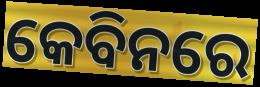
କେବିନରେ